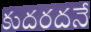
కుదరదనే